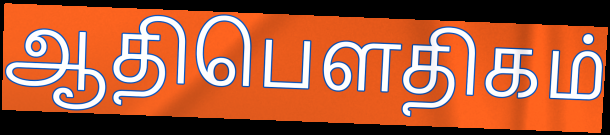
ஆதிபௌதிகம்